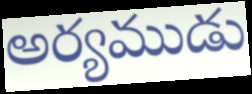
అర్యముడు